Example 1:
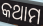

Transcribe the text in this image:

କଥାମ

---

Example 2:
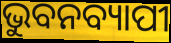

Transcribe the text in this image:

ଭୁବନବ୍ୟାପୀ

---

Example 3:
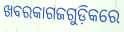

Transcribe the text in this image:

ଖବରକାଗଜଗୁଡ଼ିକରେ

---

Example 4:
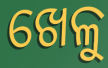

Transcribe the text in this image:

ଖେଳୁ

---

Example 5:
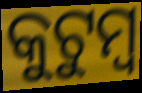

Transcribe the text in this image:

କୁଟୁମ୍ୱ